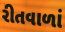
રીતવાળાં